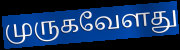
முருகவேளது